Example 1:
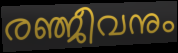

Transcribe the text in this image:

രഞ്ജീവനും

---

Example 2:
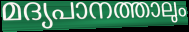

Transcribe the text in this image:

മദ്യപാനത്താലും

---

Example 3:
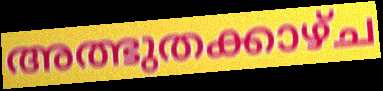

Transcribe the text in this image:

അത്ഭുതക്കാഴ്ച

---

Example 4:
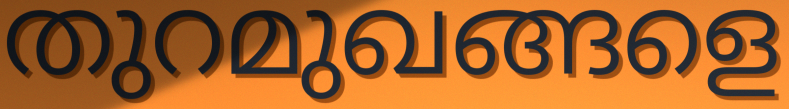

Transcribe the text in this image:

തുറമുഖങ്ങളെ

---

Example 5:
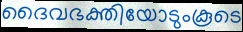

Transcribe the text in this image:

ദൈവഭക്തിയോടുംകൂടെ